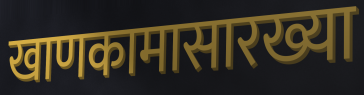
खाणकामासारख्या